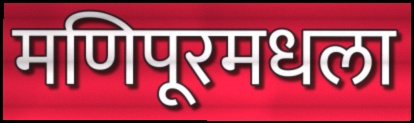
मणिपूरमधला